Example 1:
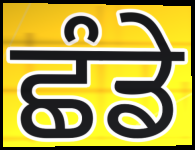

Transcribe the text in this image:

ਛੰਡੇ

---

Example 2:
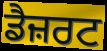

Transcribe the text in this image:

ਡੈਜ਼ਰਟ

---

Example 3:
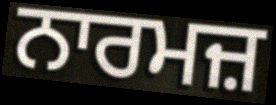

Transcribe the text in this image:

ਨਾਰਮਜ਼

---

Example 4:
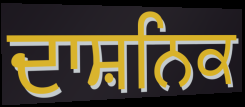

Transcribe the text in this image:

ਦਾਸ਼ਨਿਕ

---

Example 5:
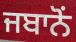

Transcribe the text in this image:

ਜਬਾਨੋਂ